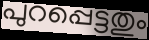
പുറപ്പെട്ടതും